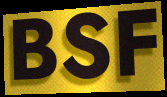
BSF